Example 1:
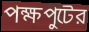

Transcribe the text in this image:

পক্ষপুটের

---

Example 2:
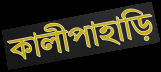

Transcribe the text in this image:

কালীপাহাড়ি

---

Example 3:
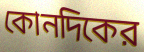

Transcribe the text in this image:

কোনদিকের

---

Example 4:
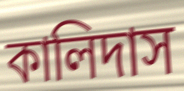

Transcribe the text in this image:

কালিদাস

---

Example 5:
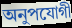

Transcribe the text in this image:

অনুপযোগী